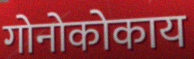
गोनोकोकाय